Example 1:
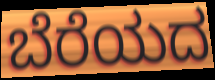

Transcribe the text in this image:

ಬೆರೆಯದ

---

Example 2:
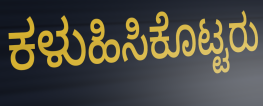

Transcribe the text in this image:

ಕಳುಹಿಸಿಕೊಟ್ಟರು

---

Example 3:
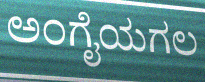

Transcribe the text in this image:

ಅಂಗೈಯಗಲ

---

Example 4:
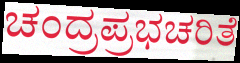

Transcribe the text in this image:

ಚಂದ್ರಪ್ರಭಚರಿತೆ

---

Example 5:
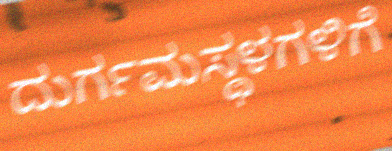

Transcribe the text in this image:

ದುರ್ಗಮಸ್ಥಳಗಳಿಗೆ